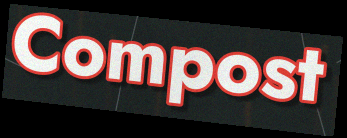
Compost